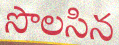
సొలసిన